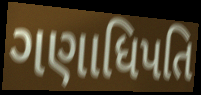
ગણાધિપતિ